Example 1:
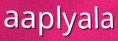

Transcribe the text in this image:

aaplyala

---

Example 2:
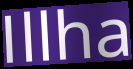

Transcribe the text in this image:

Illha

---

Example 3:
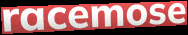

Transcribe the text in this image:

racemose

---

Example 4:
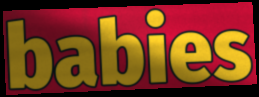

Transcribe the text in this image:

babies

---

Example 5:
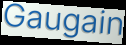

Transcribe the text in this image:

Gaugain